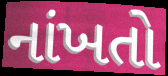
નાંખતો